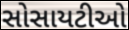
સોસાયટીઓ